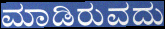
ಮಾಡಿರುವದು